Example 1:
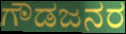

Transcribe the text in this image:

ಗೌಡಜನರ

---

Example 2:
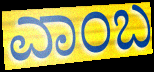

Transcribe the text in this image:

ಎಾಂಬ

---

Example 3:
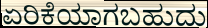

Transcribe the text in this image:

ಏರಿಕೆಯಾಗಬಹುದು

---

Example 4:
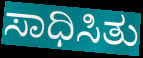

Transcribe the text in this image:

ಸಾಧಿಸಿತು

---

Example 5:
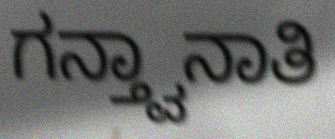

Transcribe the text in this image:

ಗನ್ತ್ವಾನಾತಿ